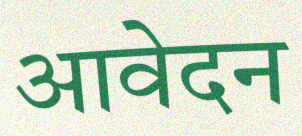
आवेदन